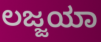
ಲಜ್ಜಯಾ